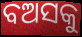
ବଅସକୁ